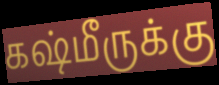
கஷ்மீருக்கு